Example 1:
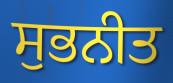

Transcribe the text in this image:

ਸੁਭਨੀਤ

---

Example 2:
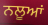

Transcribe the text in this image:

ਨਲੂਆਂ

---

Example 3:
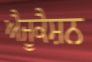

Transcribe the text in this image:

ਐਜੂਕੈਸ਼ਨ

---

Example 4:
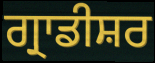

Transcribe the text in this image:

ਗ੍ਰਾਡੀਸ਼ਰ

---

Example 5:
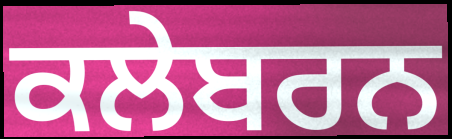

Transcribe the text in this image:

ਕਲੇਬਰਨ